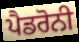
ਪੈਡਰੋਨੀ